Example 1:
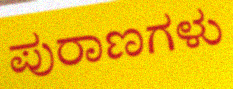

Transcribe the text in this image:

ಪುರಾಣಗಳು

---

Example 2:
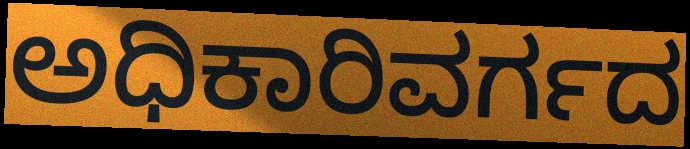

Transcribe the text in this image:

ಅಧಿಕಾರಿವರ್ಗದ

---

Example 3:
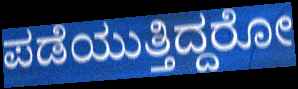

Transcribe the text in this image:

ಪಡೆಯುತ್ತಿದ್ದರೋ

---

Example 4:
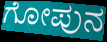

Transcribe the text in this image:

ಗೋಪುನ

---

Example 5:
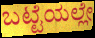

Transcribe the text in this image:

ಬಟ್ಟೆಯಲ್ಲೇ